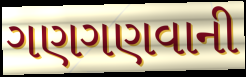
ગણગણવાની